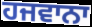
ਹਜਵਾਨਾ